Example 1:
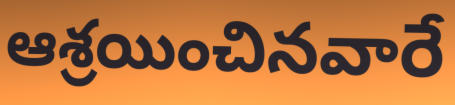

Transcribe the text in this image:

ఆశ్రయించినవారే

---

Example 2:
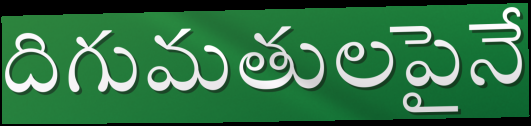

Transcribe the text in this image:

దిగుమతులపైనే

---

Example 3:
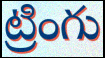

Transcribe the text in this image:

ట్రింగు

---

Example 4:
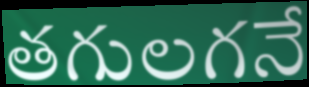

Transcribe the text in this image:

తగులగనే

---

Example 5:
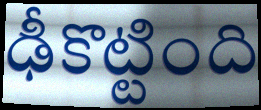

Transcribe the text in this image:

ఢీకొట్టింది